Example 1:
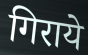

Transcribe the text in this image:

गिराये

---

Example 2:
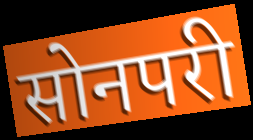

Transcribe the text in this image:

सोनपरी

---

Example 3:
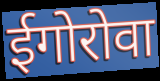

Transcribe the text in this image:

ईगोरोवा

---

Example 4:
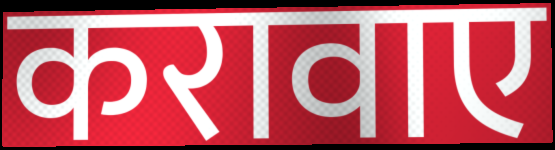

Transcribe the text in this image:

करावाए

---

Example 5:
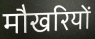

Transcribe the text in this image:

मौखरियों